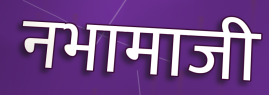
नभामाजी